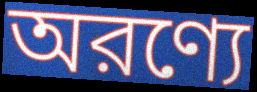
অরণ্যে